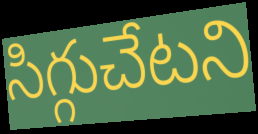
సిగ్గుచేటని